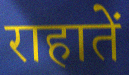
राहातें